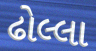
ઢોલ્લા